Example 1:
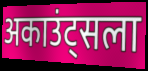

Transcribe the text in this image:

अकाउंट्सला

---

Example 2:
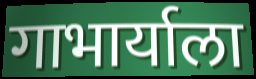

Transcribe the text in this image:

गाभार्याला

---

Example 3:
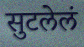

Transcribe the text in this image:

सुटलेलं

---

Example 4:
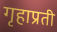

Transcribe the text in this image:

गृहाप्रती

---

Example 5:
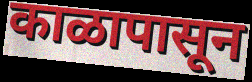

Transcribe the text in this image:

काळापासून